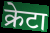
क्रेटा